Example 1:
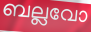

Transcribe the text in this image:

ബല്ലവോ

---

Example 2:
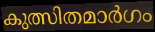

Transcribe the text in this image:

കുത്സിതമാർഗം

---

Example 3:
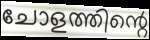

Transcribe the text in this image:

ചോളത്തിന്റെ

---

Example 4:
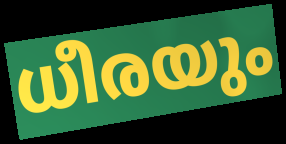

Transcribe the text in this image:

ധീരയും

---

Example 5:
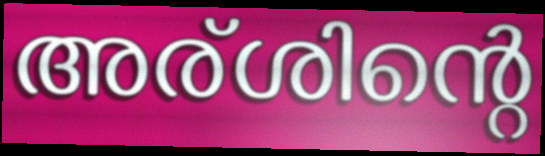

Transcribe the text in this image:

അര്ശിന്റെ